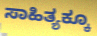
ಸಾಹಿತ್ಯಕ್ಕೂ